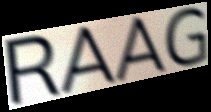
RAAG